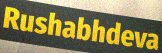
Rushabhdeva